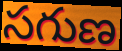
సగుణ